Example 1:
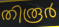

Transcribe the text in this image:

തിരൂർ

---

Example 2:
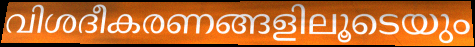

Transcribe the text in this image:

വിശദീകരണങ്ങളിലൂടെയും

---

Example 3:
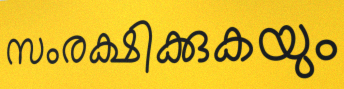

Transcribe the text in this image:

സംരക്ഷിക്കുകയും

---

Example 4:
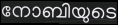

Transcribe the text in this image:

നോബിയുടെ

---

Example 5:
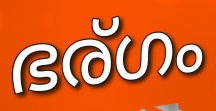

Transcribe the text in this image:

ഭര്ഗം